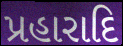
પ્રહારાદિ